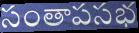
సంతాపసభ